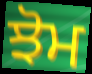
ਝੋਮ